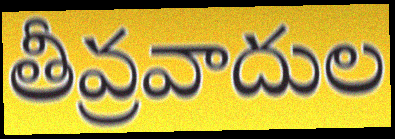
తీవ్రవాదుల